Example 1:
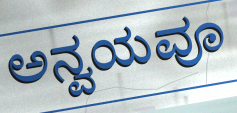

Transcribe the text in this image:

ಅನ್ವಯವೂ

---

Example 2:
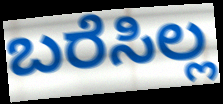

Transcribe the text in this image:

ಬರೆಸಿಲ್ಲ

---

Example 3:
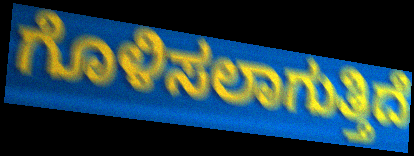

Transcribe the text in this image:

ಗೊಳಿಸಲಾಗುತ್ತಿದೆ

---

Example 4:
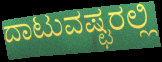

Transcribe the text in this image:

ದಾಟುವಷ್ಟರಲ್ಲಿ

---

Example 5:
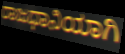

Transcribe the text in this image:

ರಾಜಧಾನಿಯಾಗಿ